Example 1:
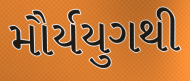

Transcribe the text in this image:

મૌર્યયુગથી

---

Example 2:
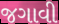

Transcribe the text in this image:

જગાવી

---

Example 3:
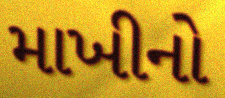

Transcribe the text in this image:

માખીનો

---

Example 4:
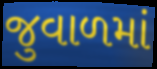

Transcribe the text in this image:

જુવાળમાં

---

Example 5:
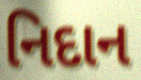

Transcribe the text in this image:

નિદાન